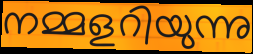
നമ്മളറിയുന്നു